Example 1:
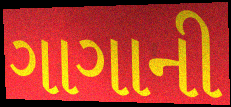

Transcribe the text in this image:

ગાગાની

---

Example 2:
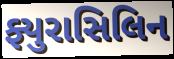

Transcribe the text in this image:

ફ્યુરાસિલિન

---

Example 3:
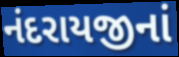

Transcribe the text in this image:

નંદરાયજીનાં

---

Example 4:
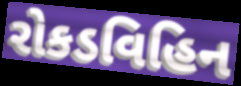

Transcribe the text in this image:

રોકડવિહિન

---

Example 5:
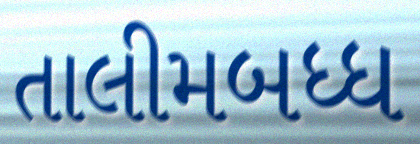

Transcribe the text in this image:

તાલીમબધ્ધ